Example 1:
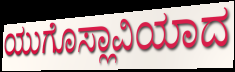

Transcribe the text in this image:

ಯುಗೊಸ್ಲಾವಿಯಾದ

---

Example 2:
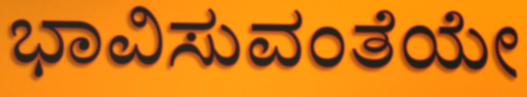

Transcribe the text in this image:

ಭಾವಿಸುವಂತೆಯೇ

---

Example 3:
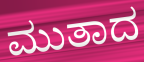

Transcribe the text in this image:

ಮುತಾದ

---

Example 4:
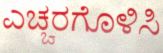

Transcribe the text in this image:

ಎಚ್ಚರಗೊಳಿಸಿ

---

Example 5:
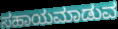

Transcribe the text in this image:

ಸಹಾಯಮಾಡುವ